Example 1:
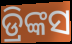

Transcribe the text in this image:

ଡ୍ରିଙ୍କସ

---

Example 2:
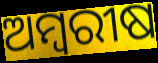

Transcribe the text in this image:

ଅମ୍ବରୀଷ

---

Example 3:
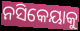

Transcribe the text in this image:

ନସିକେୟାକୁ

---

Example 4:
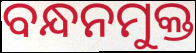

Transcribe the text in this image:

ବନ୍ଧନମୁକ୍ତ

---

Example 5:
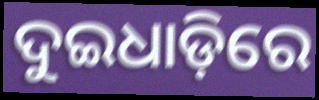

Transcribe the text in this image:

ଦୁଇଧାଡ଼ିରେ